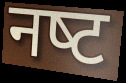
नष्‍ट